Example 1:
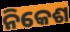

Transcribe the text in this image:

ନିକେଶ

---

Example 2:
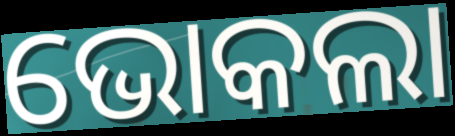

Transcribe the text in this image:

ଭୋକଲା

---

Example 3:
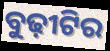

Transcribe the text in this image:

ବୁଢ଼ୀଟିର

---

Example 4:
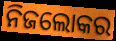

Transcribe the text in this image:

ନିଜଲୋକର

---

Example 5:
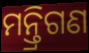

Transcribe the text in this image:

ମନ୍ତ୍ରିଗଣ